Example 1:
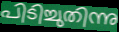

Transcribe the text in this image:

പിടിച്ചുതിന്നു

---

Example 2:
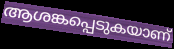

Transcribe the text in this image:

ആശങ്കപ്പെടുകയാണ്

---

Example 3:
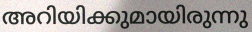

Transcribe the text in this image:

അറിയിക്കുമായിരുന്നു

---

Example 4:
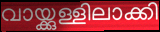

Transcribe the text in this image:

വായ്ക്കുള്ളിലാക്കി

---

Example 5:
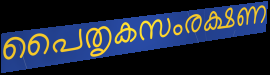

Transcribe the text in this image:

പൈതൃകസംരക്ഷണ